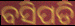
ବସିପଡି